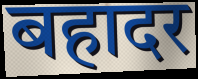
बहादर